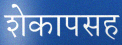
शेकापसह